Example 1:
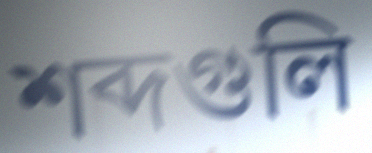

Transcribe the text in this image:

শব্দগুলি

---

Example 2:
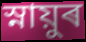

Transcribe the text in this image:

স্নায়ুৰ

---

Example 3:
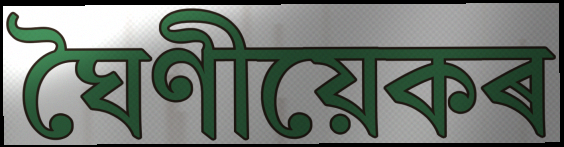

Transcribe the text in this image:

ঘৈণীয়েকৰ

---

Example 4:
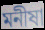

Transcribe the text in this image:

মনীষা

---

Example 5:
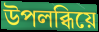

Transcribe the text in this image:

উপলব্ধিয়ে